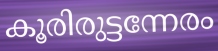
കൂരിരുട്ടന്നേരം